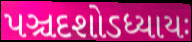
પઞ્ચદશોઽધ્યાયઃ